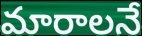
మారాలనే